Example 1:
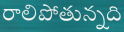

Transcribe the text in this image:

రాలిపోతున్నది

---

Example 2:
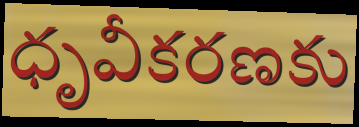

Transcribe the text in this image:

ధృవీకరణకు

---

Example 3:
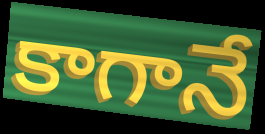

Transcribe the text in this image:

కాగానే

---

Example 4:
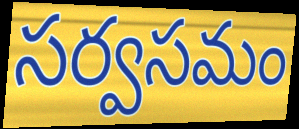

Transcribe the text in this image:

సర్వసమం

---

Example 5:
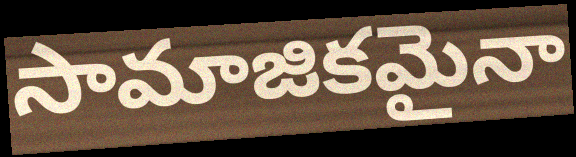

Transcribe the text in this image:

సామాజికమైనా